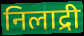
निलाद्री